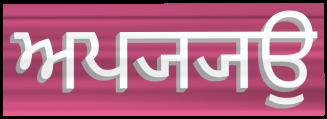
ਅਪ੍ਯ੍ਯਉ